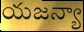
యజన్యా